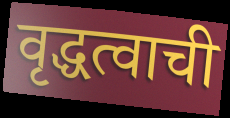
वृद्धत्वाची